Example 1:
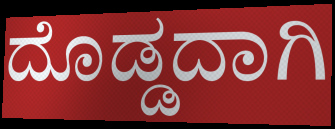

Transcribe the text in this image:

ದೊಡ್ಡದಾಗಿ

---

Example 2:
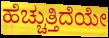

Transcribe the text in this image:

ಹೆಚ್ಚುತ್ತಿದೆಯೇ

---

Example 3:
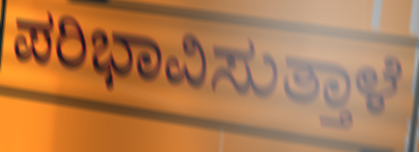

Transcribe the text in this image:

ಪರಿಭಾವಿಸುತ್ತಾಳೆ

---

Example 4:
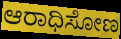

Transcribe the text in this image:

ಆರಾಧಿಸೋಣ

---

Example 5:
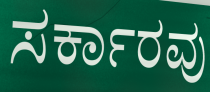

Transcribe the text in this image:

ಸರ್ಕಾರವು